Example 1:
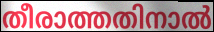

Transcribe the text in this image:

തീരാത്തതിനാൽ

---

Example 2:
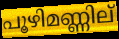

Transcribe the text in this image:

പൂഴിമണ്ണില്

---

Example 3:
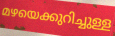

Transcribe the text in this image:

മഴയെക്കുറിച്ചുള്ള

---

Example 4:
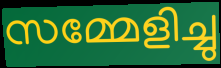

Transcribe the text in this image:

സമ്മേളിച്ചു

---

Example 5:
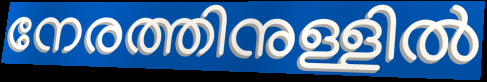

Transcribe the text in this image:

നേരത്തിനുള്ളിൽ